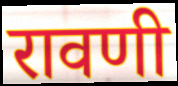
रावणी